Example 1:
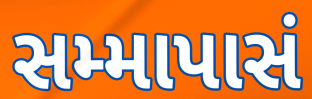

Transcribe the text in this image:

સમ્માપાસં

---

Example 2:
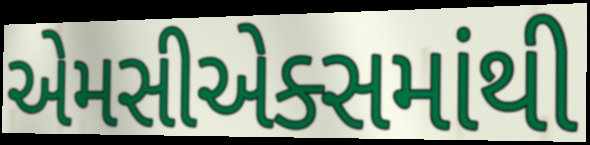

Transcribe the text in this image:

એમસીએક્સમાંથી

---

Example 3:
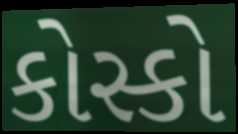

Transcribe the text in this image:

કોસ્કો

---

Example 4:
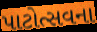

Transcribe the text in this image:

પાટોત્સવના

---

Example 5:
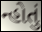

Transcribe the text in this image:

ન્હોતું